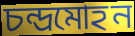
চন্দ্রমোহন